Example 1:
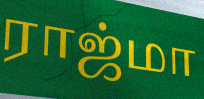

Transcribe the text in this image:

ராஜ்மா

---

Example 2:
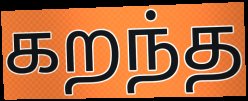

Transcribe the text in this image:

கறந்த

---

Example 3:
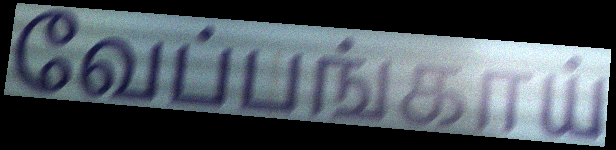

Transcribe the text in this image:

வேப்பங்காய்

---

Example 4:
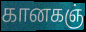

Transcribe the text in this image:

கானகஞ்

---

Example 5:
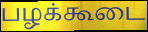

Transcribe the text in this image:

பழக்கூடை